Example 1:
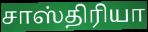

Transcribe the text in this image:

சாஸ்திரியா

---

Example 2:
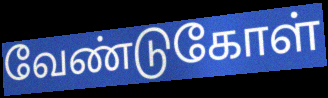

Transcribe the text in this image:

வேண்டுகோள்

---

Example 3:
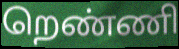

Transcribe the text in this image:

றெண்ணி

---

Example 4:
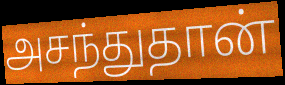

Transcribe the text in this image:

அசந்துதான்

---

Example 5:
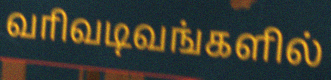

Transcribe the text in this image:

வரிவடிவங்களில்